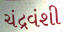
ચંદ્રવંશી